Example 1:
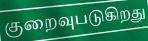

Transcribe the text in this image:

குறைவுபடுகிறது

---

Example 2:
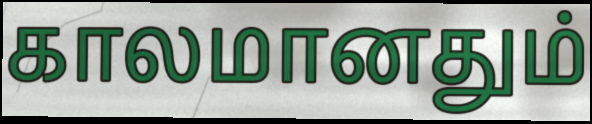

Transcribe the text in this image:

காலமானதும்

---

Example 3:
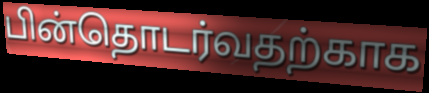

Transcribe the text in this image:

பின்தொடர்வதற்காக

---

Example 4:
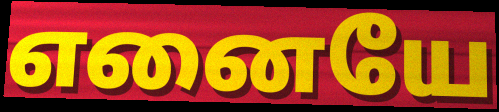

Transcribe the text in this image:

எனையே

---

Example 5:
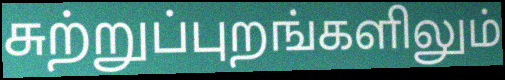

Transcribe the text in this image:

சுற்றுப்புறங்களிலும்